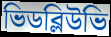
ভিডব্লিউভি